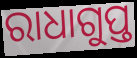
ରାଧାଗୁପ୍ତ